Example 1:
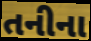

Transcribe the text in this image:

તનીના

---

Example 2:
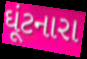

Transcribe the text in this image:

ઘૂંટનારા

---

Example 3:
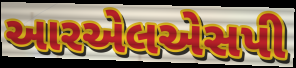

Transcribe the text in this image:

આરએલએસપી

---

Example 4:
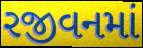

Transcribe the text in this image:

રજીવનમાં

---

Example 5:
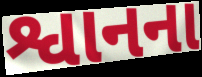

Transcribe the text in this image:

શ્વાનના